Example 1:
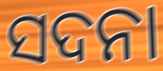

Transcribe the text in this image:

ସଦନା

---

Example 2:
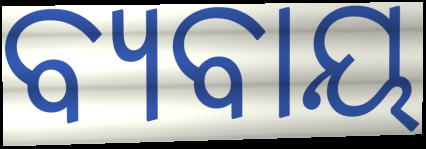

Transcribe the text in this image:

ବ୍ୟବାୟ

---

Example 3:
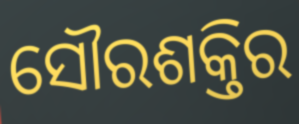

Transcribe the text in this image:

ସୌରଶକ୍ତିର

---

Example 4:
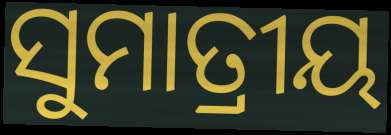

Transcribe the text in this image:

ସୁମାତ୍ରୀୟ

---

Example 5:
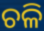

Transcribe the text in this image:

ଚଳି